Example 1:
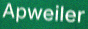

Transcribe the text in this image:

Apweiler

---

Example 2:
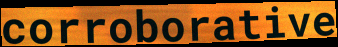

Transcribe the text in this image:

corroborative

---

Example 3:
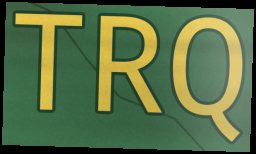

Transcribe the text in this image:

TRQ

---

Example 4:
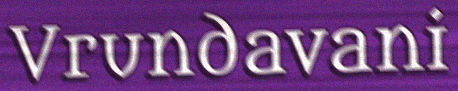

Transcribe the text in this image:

Vrundavani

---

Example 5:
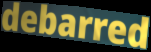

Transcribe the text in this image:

debarred